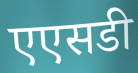
एएसडी